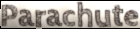
Parachute